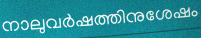
നാലുവർഷത്തിനുശേഷം